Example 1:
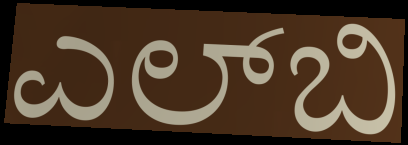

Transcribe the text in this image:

ಎಲ್‌ಬಿ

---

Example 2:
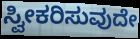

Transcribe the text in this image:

ಸ್ವೀಕರಿಸುವುದೇ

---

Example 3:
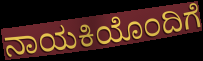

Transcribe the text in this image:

ನಾಯಕಿಯೊಂದಿಗೆ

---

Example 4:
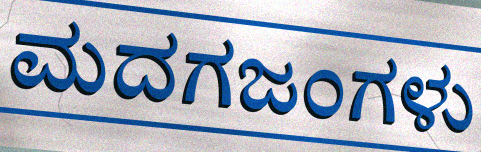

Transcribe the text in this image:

ಮದಗಜಂಗಳು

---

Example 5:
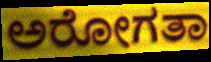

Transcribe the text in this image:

ಅರೋಗತಾ